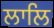
ਲਾਲਿ